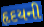
હૃદયની